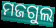
ମଜଗୁଲ